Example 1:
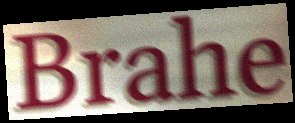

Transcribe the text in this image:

Brahe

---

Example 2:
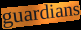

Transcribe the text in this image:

guardians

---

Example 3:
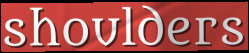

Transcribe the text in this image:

shoulders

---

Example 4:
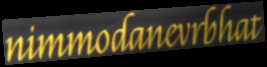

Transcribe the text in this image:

nimmodanevrbhat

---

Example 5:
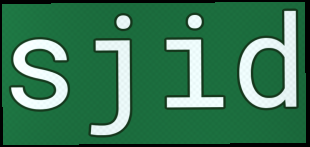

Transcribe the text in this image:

sjid